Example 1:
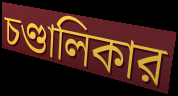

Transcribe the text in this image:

চণ্ডালিকার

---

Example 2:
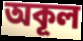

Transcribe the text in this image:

অকূল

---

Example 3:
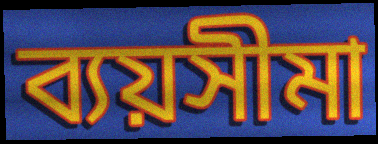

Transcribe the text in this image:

ব্যয়সীমা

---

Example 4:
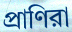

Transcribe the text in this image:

প্রাণিরা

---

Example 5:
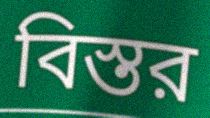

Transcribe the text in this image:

বিস্তর